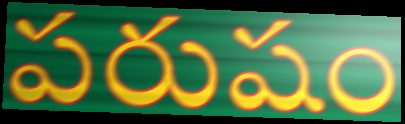
పరుషం